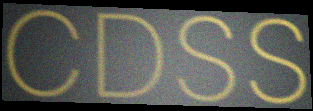
CDSS